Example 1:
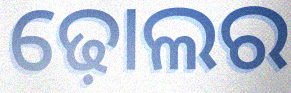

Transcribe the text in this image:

ଢ଼ୋଲର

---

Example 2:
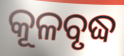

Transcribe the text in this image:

କୂଳବୃଦ୍ଧ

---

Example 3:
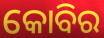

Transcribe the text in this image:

କୋବିର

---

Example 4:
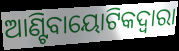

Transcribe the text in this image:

ଆଣ୍ଟିବାୟୋଟିକଦ୍ୱାରା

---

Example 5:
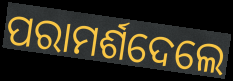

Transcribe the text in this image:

ପରାମର୍ଶଦେଲେ